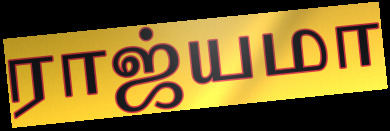
ராஜ்யமா